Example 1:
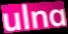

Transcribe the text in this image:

ulna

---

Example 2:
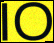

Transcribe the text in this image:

IO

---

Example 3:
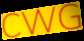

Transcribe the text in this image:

CWG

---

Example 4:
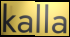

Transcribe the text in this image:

kalla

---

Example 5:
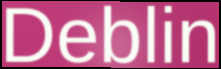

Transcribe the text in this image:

Deblin